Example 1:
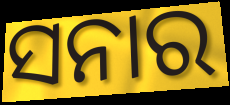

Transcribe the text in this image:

ସନାର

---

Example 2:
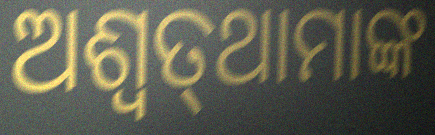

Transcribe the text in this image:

ଅଶ୍ୱତ୍‌ଥାମାଙ୍କ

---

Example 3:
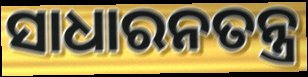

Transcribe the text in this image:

ସାଧାରନତନ୍ତ୍ର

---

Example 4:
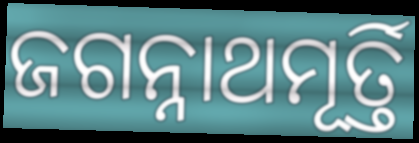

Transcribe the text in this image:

ଜଗନ୍ନାଥମୂର୍ତ୍ତି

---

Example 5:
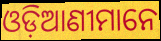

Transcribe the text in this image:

ଓଡ଼ିଆଣୀମାନେ